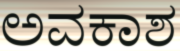
ಅವಕಾಶ